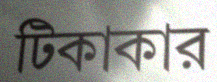
টিকাকার